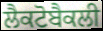
ਲੈਕਟੋਬੈਕਲੀ